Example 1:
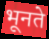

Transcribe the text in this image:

भूनते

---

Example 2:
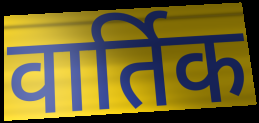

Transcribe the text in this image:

वार्तिक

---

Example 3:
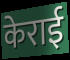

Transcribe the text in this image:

केराई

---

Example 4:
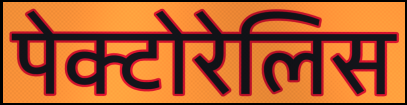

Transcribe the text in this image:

पेक्टोरेलिस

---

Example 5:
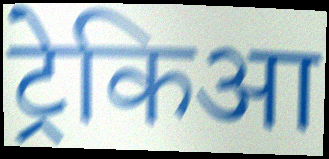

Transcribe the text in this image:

ट्रेकिआ